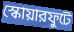
স্কোয়ারফুটে